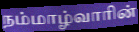
நம்மாழ்வாரின்